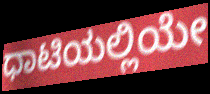
ಧಾಟಿಯಲ್ಲಿಯೇ